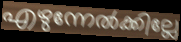
എഴുന്നേൽക്കില്ലേ